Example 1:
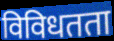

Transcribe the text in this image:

विविधतता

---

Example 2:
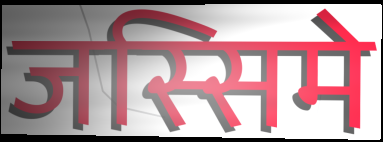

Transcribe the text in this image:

जस्सिमे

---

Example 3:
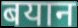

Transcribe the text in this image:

बयान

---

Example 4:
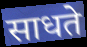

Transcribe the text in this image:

साधते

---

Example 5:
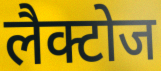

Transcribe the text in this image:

लैक्टोज